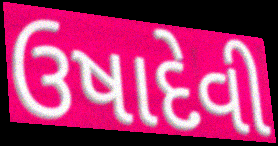
ઉષાદેવી